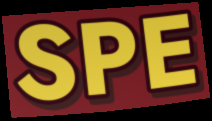
SPE